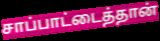
சாப்பாட்டைத்தான்